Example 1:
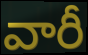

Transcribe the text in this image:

వారీ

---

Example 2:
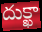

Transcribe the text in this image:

దుక్ఖా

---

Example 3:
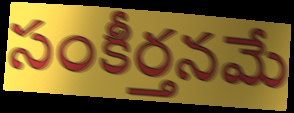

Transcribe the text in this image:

సంకీర్తనమే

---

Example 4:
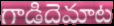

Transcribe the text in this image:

గాడిదెమాట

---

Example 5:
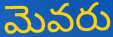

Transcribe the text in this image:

మెవరు